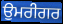
ਉਮਰੀਗਰ